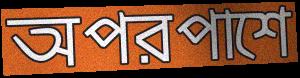
অপরপাশে